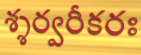
శ్శర్వరీకరః